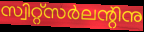
സ്വിറ്റ്സർലന്റിനു